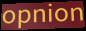
opnion